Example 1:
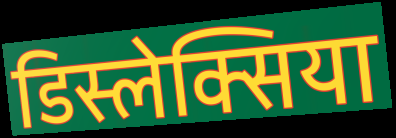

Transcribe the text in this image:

डिस्लेक्सिया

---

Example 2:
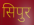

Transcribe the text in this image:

सिपुर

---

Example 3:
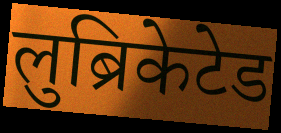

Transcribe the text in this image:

लुब्रिकेटेड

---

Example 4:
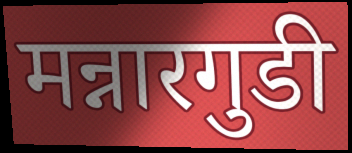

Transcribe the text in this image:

मन्नारगुडी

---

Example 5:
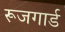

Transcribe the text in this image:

रूजगार्ड